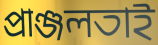
প্রাঞ্জলতাই